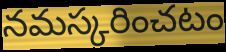
నమస్కరించటం